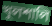
খুলশালি